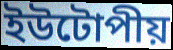
ইউটোপীয়